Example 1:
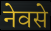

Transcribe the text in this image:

नेवसे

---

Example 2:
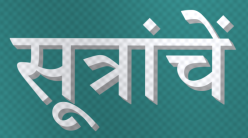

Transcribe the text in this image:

सूत्रांचें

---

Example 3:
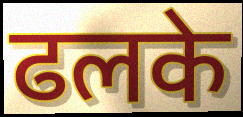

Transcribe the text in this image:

ढलके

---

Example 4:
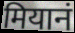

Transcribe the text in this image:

मियानं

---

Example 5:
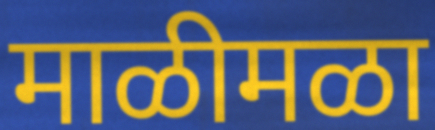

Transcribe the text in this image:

माळीमळा